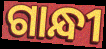
ଗାନ୍ଧୀ